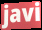
javi